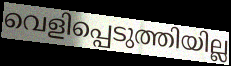
വെളിപ്പെടുത്തിയില്ല